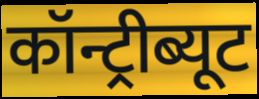
कॉन्ट्रीब्यूट